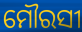
ମୌରସୀ